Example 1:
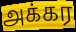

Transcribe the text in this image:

அக்கர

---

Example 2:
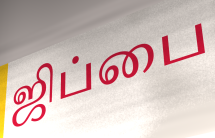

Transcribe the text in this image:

ஜிப்பை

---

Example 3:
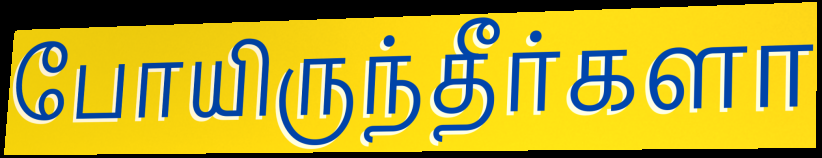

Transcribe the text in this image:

போயிருந்தீர்களா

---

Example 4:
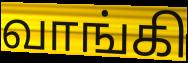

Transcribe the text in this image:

வாங்கி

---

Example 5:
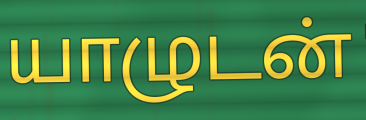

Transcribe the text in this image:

யாழுடன்